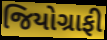
જિયોગ્રાફી